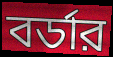
বর্ডার